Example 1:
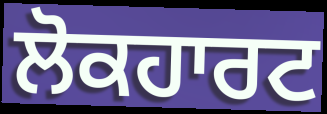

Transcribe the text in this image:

ਲੋਕਹਾਰਟ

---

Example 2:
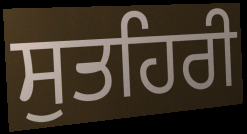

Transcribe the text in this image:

ਸੁਤਹਿਰੀ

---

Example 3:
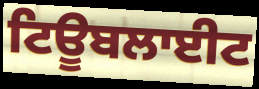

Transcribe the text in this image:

ਟਿਊਬਲਾਈਟ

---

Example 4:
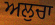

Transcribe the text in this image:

ਅਲੁਚਾ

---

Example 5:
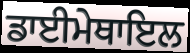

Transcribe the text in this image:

ਡਾਈਮੇਥਾਇਲ